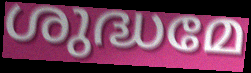
ശുദ്ധമേ